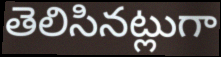
తెలిసినట్లుగా